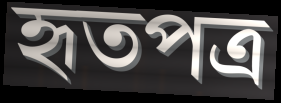
হৃতপত্র